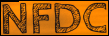
NFDC